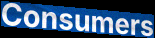
Consumers